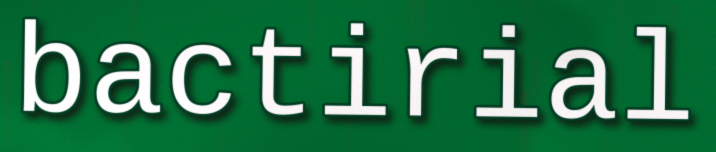
bactirial